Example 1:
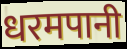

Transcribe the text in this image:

धरमपानी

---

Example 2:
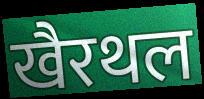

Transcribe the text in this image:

खैरथल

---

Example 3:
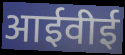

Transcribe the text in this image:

आईवीई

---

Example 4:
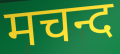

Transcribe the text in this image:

मचन्द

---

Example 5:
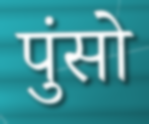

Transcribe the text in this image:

पुंसो